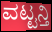
ವಟ್ಟನ್ತಿ